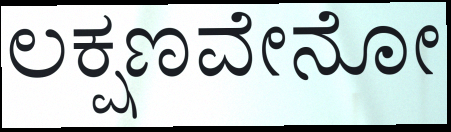
ಲಕ್ಷಣವೇನೋ